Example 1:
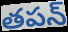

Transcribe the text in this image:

తపన్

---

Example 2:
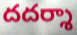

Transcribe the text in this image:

దదర్శా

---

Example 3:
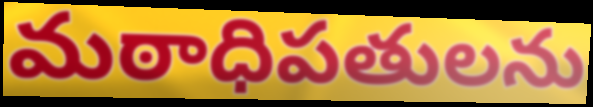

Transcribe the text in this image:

మఠాధిపతులను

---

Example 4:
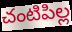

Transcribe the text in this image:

చంటిపిల్ల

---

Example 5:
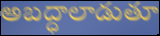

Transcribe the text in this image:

అబద్ధాలాడుతూ